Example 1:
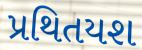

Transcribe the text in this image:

પ્રથિતયશ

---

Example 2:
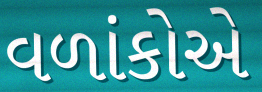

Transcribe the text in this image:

વળાંકોએ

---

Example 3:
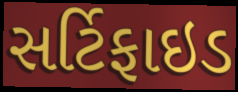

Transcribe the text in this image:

સર્ટિફાઇડ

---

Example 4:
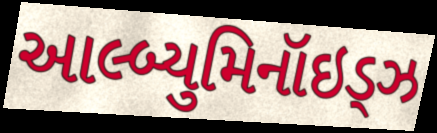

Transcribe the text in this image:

આલ્બ્યુમિનૉઇડ્ઝ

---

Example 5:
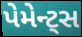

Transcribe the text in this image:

પેમેન્ટ્સ